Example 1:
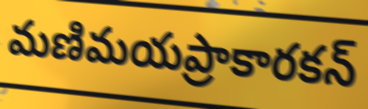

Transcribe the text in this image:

మణిమయప్రాకారకన్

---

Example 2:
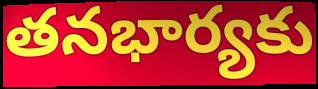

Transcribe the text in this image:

తనభార్యకు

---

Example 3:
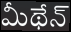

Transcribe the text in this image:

మీథేన్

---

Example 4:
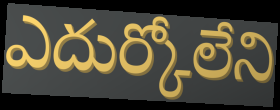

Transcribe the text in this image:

ఎదుర్కోలేని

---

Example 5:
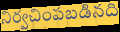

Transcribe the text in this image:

నిర్వచింపబడినది